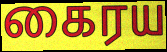
கைரய